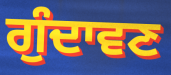
ਗੁੰਦਾਵਣ